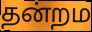
தன்றம